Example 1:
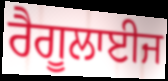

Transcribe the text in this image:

ਰੈਗੂਲਾਈਜ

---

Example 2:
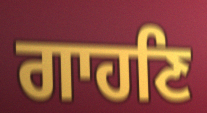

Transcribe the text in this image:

ਗਾਹਣਿ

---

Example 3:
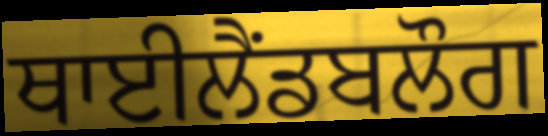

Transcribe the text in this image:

ਥਾਈਲੈਂਡਬਲੌਗ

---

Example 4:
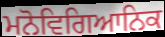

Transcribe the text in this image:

ਮਨੋਵਿਗਿਆਨਿਕ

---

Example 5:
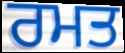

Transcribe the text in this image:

ਰਮਤ